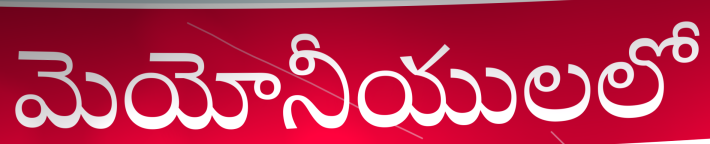
మెయోనీయులలో